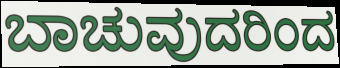
ಬಾಚುವುದರಿಂದ